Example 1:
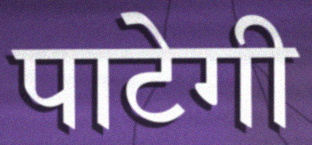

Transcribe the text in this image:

पाटेगी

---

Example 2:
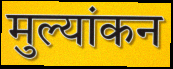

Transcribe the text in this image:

मुल्यांकन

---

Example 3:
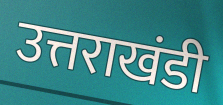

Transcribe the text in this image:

उत्तराखंडी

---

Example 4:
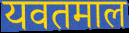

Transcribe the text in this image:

यवतमाल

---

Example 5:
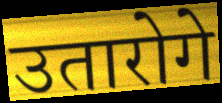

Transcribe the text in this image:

उतारोगे